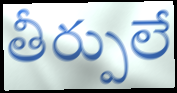
తీర్పులే